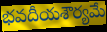
భవదీయశౌర్యమే